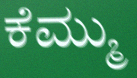
ಕೆಮ್ಮು